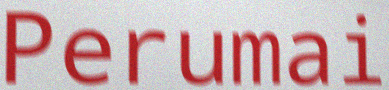
Perumai